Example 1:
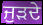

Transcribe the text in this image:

ਜੁੜਦੇ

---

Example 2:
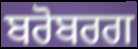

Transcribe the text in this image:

ਬਰੋਬਰਗ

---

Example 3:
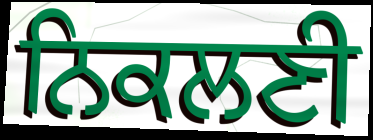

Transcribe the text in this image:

ਨਿਕਲਣੀ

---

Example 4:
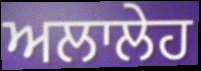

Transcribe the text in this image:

ਅਲਾਲੇਹ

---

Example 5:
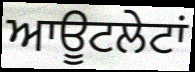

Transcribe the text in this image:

ਆਊਟਲੇਟਾਂ